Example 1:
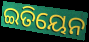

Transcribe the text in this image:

ଇତିୟେନ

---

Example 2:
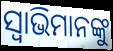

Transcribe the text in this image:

ସ୍ୱାଭିମାନଙ୍କୁ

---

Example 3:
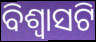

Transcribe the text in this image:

ବିଶ୍ୱାସଟି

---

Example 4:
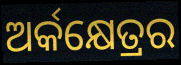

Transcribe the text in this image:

ଅର୍କକ୍ଷେତ୍ରର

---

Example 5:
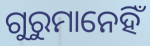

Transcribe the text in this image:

ଗୁରୁମାନେହିଁ